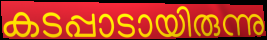
കടപ്പാടായിരുന്നു